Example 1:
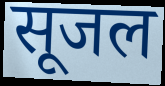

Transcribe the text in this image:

सूजल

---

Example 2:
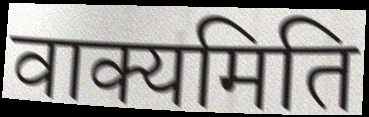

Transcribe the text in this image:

वाक्यमिति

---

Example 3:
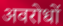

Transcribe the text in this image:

अवरोधों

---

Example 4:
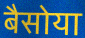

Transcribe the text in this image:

बैसोया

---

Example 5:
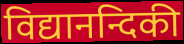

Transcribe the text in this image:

विद्यानन्दिकी